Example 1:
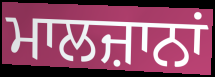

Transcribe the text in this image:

ਮਾਲਜ਼ਾਨਾਂ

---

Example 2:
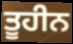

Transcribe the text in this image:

ਤੂਹੀਨ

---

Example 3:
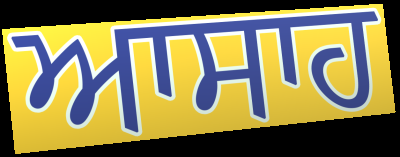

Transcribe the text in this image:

ਆਸਾਹ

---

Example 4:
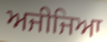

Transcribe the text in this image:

ਅਜੀਜਿਆ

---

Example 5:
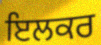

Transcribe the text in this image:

ਇਲਕਰ